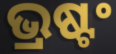
ଭ୍ରଷ୍ଟଂ